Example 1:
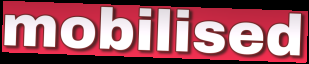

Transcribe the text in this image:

mobilised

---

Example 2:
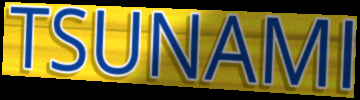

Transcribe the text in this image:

TSUNAMI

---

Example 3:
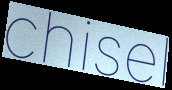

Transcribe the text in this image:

chisel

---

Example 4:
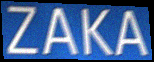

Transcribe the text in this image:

ZAKA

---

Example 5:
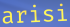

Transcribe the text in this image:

arisi